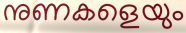
നുണകളെയും